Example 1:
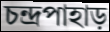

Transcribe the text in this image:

চন্দ্রপাহাড়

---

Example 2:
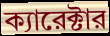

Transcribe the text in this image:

ক্যারেক্টার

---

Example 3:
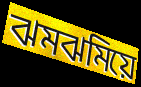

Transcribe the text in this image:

ঝমঝমিয়ে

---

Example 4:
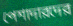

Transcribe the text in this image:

পেশাদারদের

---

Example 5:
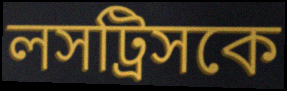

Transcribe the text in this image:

লসট্রিসকে